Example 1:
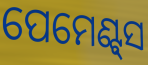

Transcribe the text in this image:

ପେମେଣ୍ଟ୍‌ସ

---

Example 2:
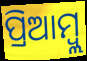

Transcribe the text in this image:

ପ୍ରିଆମ୍ବ୍ଲ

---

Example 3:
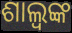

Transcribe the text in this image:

ଶାଲ୍ୱଙ୍କ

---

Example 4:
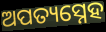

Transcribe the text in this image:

ଅପତ୍ୟସ୍ନେହ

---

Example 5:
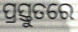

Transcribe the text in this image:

ପ୍ରସ୍ତୁତରେ